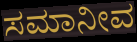
ಸಮಾನೀವ